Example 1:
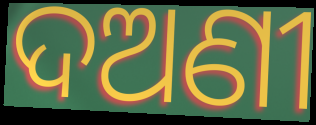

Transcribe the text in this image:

ଦଅଣୀ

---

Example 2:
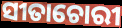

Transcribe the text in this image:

ସୀତାଚୋରୀ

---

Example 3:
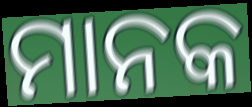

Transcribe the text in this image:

ମାନକ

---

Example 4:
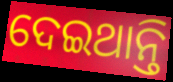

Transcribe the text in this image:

ଦେଇଥାନ୍ତି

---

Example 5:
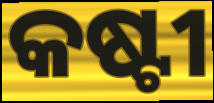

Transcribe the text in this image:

କଷ୍ଟୀ